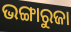
ଭଙ୍ଗାରୁଜା